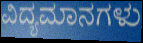
ವಿದ್ಯಮಾನಗಳು